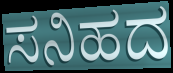
ಸನಿಹದ